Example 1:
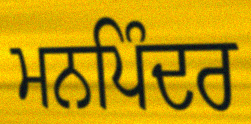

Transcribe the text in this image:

ਮਨਪਿੰਦਰ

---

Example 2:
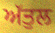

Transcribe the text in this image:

ਅੱਤੁਲ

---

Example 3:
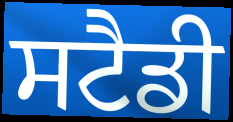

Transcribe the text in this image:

ਸਟੈਡੀ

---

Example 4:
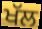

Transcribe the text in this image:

ਖੱਲ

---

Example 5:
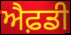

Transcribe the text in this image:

ਐਫ਼ਡੀ